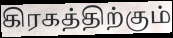
கிரகத்திற்கும்